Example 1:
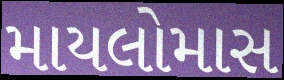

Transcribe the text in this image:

માયલોમાસ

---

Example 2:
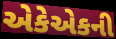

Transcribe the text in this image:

એકેએકની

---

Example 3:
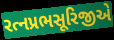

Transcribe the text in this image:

રત્નપ્રભસૂરિજીએ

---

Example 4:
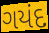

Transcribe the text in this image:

ગયંદ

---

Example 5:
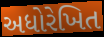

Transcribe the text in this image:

અધોરેખિત